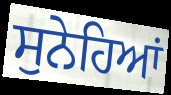
ਸੁਨੇਹਿਆਂ